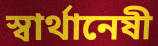
স্বার্থানেষী